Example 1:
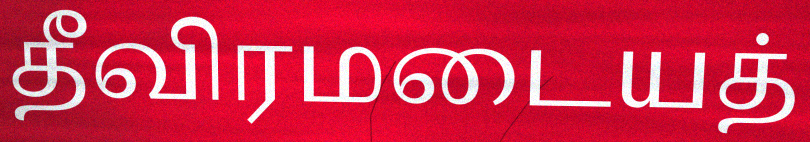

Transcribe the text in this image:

தீவிரமடையத்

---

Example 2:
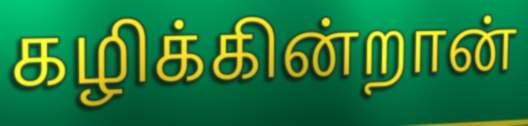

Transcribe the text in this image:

கழிக்கின்றான்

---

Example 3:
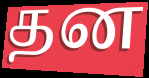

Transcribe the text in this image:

தன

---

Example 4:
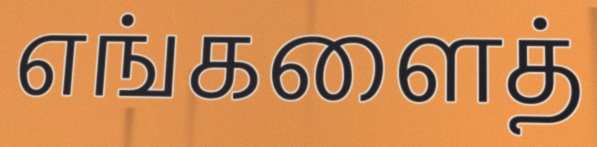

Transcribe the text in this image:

எங்களைத்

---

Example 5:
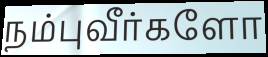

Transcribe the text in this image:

நம்புவீர்களோ